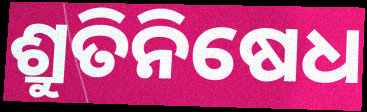
ଶ୍ରୁତିନିଷେଧ